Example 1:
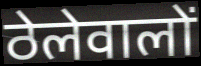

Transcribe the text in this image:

ठेलेवालों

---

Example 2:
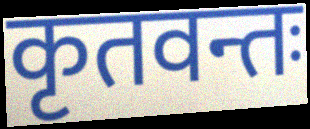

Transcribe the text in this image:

कृतवन्तः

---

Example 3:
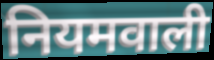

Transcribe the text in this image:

नियमवाली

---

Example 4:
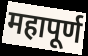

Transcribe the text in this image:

महापूर्ण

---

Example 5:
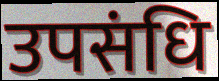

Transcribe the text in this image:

उपसंधि